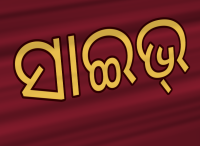
ସାଇଭ୍